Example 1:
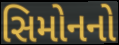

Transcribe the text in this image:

સિમોનનો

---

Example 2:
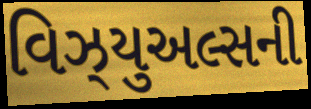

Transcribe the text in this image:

વિઝ્યુઅલ્સની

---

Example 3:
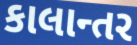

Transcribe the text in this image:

કાલાન્તર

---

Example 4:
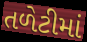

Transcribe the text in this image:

તળેટીમાં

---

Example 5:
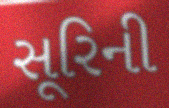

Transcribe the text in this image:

સૂરિની